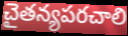
చైతన్యపరచాలి